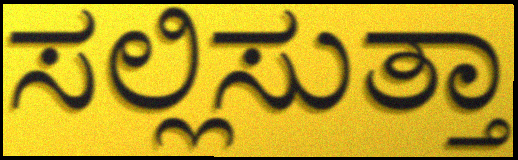
ಸಲ್ಲಿಸುತ್ತಾ